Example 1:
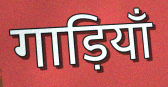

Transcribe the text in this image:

गाड़ियाँ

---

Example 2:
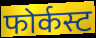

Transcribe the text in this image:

फोर्कस्ट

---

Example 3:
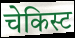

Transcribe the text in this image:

चेकिस्ट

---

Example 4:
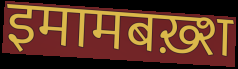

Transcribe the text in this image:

इमामबख़्श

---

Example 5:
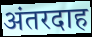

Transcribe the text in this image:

अंतरदाह